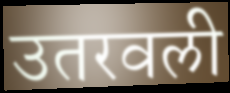
उतरवली